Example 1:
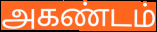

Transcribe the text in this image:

அகண்டம்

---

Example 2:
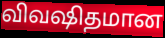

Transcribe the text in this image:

விவஷிதமான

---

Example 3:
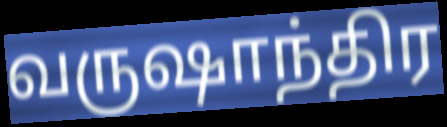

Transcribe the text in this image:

வருஷாந்திர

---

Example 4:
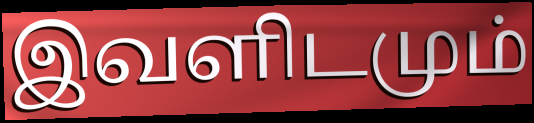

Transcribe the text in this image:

இவளிடமும்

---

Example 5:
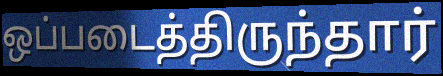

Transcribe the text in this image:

ஒப்படைத்திருந்தார்